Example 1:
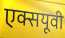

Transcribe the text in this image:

एक्सयूवी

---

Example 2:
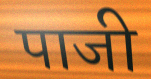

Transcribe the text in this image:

पाजी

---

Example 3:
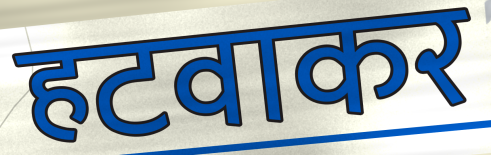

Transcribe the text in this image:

हटवाकर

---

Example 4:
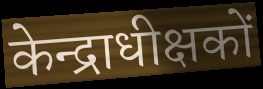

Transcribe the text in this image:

केन्द्राधीक्षकों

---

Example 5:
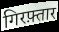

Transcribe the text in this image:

गिरफ़्तार